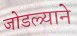
जोडल्याने